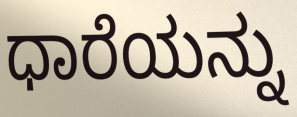
ಧಾರೆಯನ್ನು